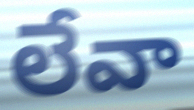
లేవా